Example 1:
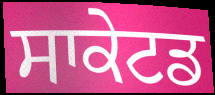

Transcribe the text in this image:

ਸਾਕੇਟਡ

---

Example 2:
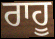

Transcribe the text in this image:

ਰਾਹੂ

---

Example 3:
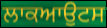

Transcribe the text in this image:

ਲਾਕਆਉਟਸ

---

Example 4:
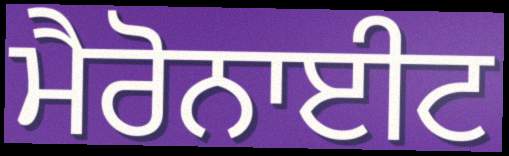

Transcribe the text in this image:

ਮੈਰੋਨਾਈਟ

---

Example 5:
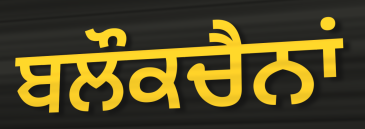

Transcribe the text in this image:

ਬਲੌਕਚੈਨਾਂ